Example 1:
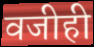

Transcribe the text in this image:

वजीही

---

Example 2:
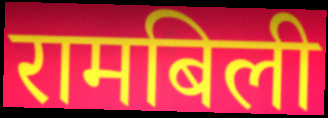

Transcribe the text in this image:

रामबिली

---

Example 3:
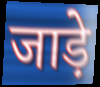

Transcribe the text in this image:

जाड़े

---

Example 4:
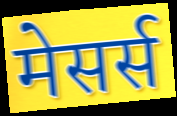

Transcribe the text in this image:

मेसर्स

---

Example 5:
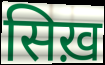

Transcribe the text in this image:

सिख़